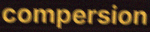
compersion